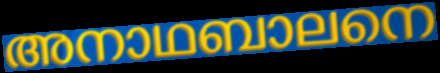
അനാഥബാലനെ